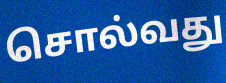
சொல்வது